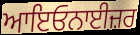
ਆਇਓਨਾਈਜ਼ਰ